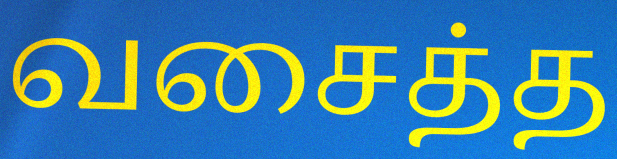
வசைத்த